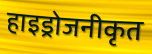
हाइड्रोजनीकृत